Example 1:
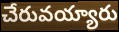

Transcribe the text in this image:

చేరువయ్యారు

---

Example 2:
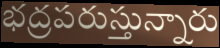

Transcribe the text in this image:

భద్రపరుస్తున్నారు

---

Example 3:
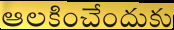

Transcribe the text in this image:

ఆలకించేందుకు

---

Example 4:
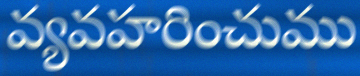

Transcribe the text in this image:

వ్యవహరించుము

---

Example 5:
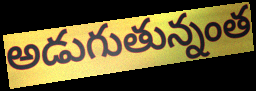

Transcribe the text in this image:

అడుగుతున్నంత